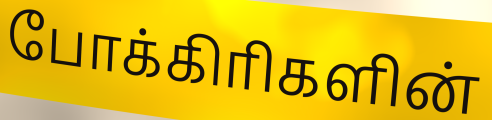
போக்கிரிகளின்